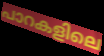
പാറകളിലെ